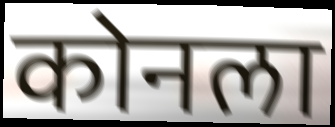
कोनला